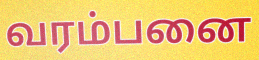
வரம்பனை